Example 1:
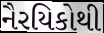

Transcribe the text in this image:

નૈરયિકોથી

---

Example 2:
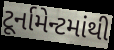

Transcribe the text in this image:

ટૂર્નામેન્ટમાંથી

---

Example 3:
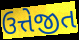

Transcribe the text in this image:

ઉત્તેજીત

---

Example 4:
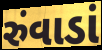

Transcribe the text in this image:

રુંવાડાં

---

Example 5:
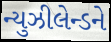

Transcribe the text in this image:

ન્યુઝીલેન્ડને